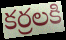
కర్రలకి